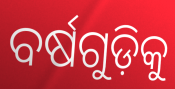
ବର୍ଷଗୁଡ଼ିକୁ